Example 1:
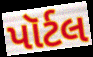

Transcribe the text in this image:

પૉર્ટલ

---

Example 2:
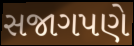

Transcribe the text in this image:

સજાગપણે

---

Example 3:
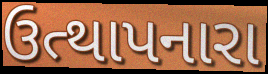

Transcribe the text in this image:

ઉત્થાપનારા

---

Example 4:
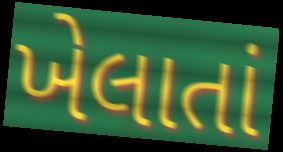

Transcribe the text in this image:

ખેલાતાં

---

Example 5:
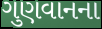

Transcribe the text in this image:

ગુણવાનના